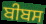
ਬੀਬਸ